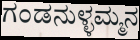
ಗಂಡನುಳ್ಳಮ್ಮನ